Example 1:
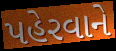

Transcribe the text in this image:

પહેરવાને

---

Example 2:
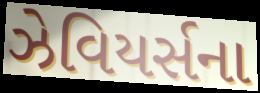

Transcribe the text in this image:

ઝેવિયર્સના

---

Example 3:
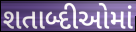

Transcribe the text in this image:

શતાબ્દીઓમાં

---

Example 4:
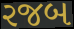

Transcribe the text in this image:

રજબ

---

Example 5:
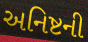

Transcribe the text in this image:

અનિષ્ટની